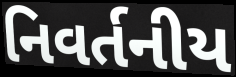
નિવર્તનીય